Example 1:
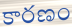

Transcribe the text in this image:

కారణం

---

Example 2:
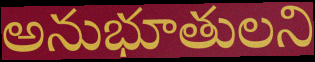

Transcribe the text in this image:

అనుభూతులని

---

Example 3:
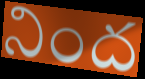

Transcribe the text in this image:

నింద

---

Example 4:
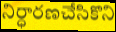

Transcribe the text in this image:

నిర్ధారణచేసికొని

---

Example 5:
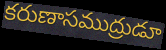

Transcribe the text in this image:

కరుణాసముద్రుడూ